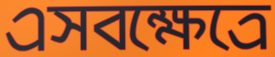
এসবক্ষেত্রে